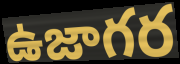
ఉజాగర